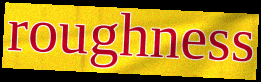
roughness